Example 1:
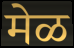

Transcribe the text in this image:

मेळ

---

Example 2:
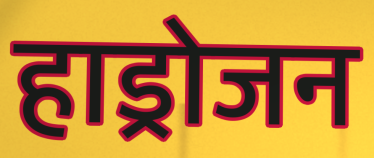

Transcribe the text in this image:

हाड्रोजन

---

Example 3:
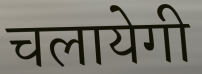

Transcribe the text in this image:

चलायेगी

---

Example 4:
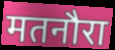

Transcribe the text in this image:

मतनौरा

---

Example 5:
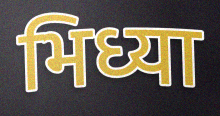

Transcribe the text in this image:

भिध्या